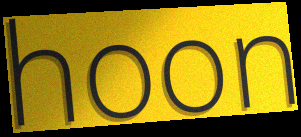
hoon